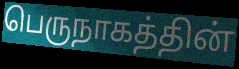
பெருநாகத்தின்